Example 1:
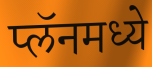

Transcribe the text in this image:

प्लॅनमध्ये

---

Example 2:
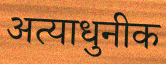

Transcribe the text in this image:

अत्याधुनीक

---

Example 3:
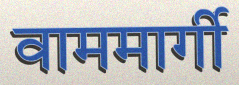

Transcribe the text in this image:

वाममार्गी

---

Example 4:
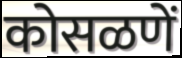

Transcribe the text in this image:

कोसळणें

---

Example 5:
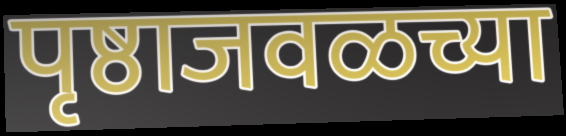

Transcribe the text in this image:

पृष्ठाजवळच्या